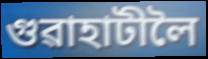
গুৱাহাটীলৈ